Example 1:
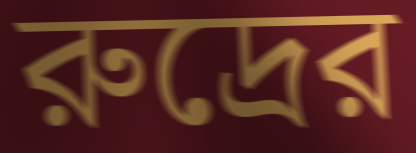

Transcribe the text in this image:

রুদ্রের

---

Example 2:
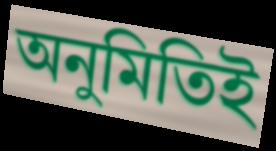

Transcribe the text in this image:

অনুমিতিই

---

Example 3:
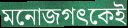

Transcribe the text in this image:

মনোজগৎকেই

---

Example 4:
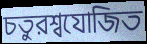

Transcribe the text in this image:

চতুরশ্বযোজিত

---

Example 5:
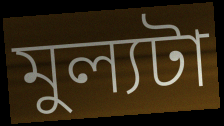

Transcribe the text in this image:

মুল্যটা